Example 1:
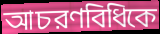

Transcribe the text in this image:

আচরণবিধিকে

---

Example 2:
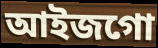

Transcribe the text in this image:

আইজগো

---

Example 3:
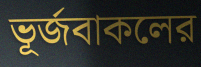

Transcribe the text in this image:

ভূর্জবাকলের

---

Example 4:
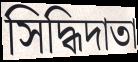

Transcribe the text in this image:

সিদ্ধিদাতা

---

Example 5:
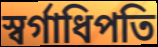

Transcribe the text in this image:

স্বর্গাধিপতি